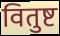
वितुष्ट